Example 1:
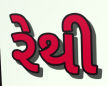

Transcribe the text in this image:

રેથી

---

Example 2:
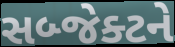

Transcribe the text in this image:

સબ્જેક્ટને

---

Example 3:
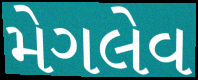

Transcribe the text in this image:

મેગલેવ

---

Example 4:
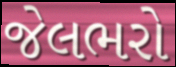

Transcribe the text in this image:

જેલભરો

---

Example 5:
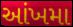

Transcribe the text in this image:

આંખમા